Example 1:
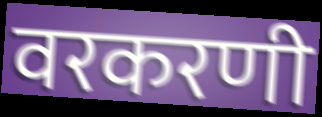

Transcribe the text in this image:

वरकरणी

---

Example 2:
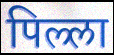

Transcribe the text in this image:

पिल्ला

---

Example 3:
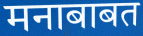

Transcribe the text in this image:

मनाबाबत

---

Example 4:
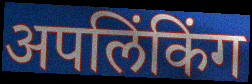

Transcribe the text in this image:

अपलिंकिंग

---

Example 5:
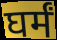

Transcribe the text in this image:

घर्मं